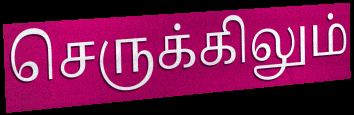
செருக்கிலும்